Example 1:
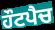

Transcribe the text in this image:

ਹੌਟਪੈਚ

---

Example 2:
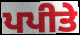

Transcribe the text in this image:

ਪਪੀਤੇ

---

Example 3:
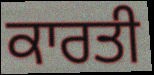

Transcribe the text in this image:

ਕਾਰਤੀ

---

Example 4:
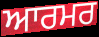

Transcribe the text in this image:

ਆਰਮਰ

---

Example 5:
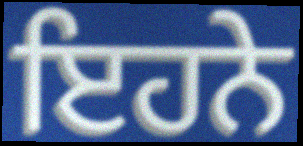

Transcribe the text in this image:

ਇਹਨੇ